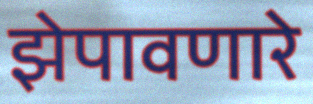
झेपावणारे